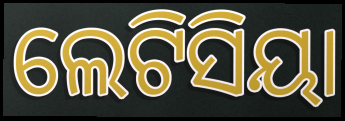
ଲେଟିସିୟା